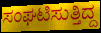
ಸಂಘಟಿಸುತ್ತಿದ್ದ